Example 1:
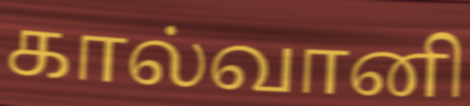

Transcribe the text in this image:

கால்வானி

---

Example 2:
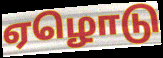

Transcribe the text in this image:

ஏழொடு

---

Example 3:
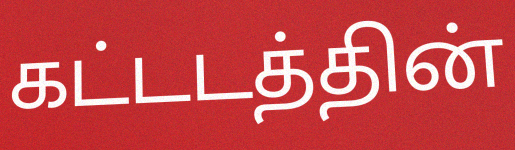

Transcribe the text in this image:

கட்டடத்தின்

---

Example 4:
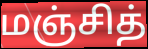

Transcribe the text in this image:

மஞ்சித்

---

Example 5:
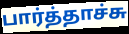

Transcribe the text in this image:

பார்த்தாச்சு